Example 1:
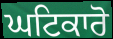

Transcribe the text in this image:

ਘਟਿਕਾਰੋ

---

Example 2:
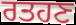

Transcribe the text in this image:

ਰਤਹਣ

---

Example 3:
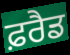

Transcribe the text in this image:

ਫ਼ਰੈਡ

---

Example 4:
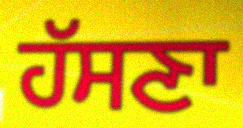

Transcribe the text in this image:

ਹੱਸਣਾ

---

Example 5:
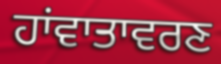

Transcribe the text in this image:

ਹਾਂਵਾਤਾਵਰਣ